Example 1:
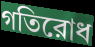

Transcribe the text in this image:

গতিরোধ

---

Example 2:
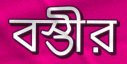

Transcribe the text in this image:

বস্তীর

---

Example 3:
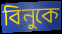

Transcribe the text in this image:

বিনুকে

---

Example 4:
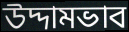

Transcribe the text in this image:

উদ্দামভাব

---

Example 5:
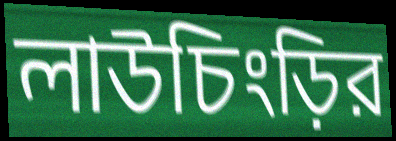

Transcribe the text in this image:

লাউচিংড়ির